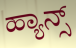
ಹ್ಯಾನ್ಸ್